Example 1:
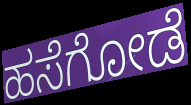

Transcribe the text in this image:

ಹಸೆಗೋಡೆ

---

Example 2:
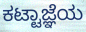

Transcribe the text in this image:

ಕಟ್ಟಾಜ್ಞೆಯ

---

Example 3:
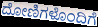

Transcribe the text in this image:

ದೋಣಿಗಳೊಂದಿಗೆ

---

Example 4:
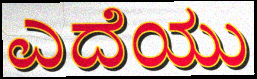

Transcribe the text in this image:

ಎದೆಯು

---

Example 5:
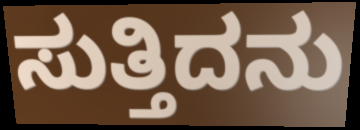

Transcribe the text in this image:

ಸುತ್ತಿದನು